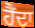
ਹੈਂਦਾ